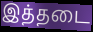
இத்தடை